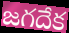
జగదేక